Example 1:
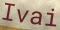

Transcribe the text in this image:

Ivai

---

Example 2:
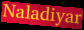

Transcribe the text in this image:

Naladiyar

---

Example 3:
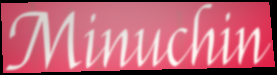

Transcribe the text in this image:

Minuchin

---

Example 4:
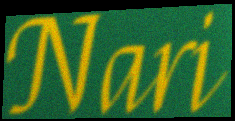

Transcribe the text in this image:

Nari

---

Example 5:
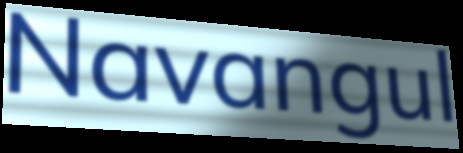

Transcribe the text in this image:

Navangul